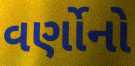
વર્ણોનો